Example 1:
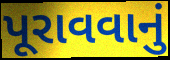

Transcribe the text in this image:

પૂરાવવાનું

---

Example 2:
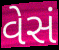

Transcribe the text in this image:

વેસં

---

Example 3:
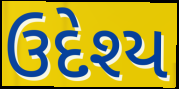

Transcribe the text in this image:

ઉદેશ્ય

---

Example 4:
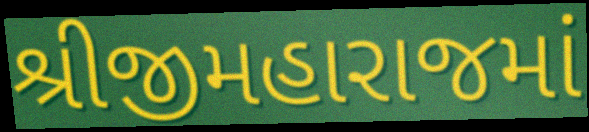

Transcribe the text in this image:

શ્રીજીમહારાજમાં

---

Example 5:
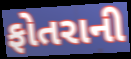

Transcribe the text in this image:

ફોતરાની